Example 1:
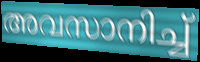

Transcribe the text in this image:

അവസാനിച്ച്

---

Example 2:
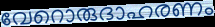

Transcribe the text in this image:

വേറൊരുദാഹരണം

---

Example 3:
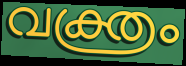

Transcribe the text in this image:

വക്ത്രം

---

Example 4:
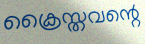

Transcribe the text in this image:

ക്രൈസ്തവന്റെ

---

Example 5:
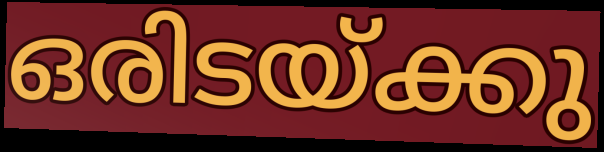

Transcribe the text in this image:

ഒരിടയ്ക്കു